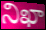
నిఖా